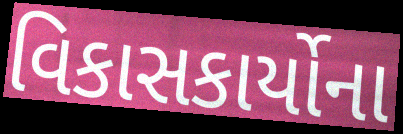
વિકાસકાર્યોના